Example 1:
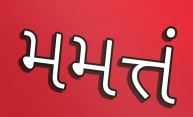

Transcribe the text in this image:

મમત્તં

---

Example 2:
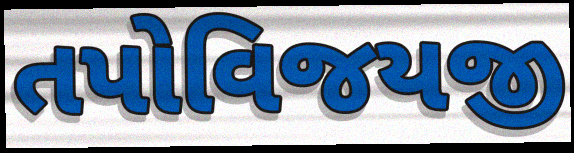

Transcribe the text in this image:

તપોવિજયજી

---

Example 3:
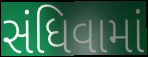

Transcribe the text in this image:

સંધિવામાં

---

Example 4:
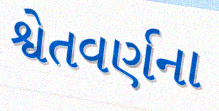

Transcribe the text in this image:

શ્વેતવર્ણના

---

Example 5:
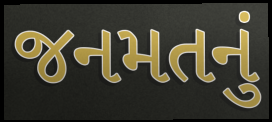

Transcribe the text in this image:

જનમતનું